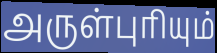
அருள்புரியும்